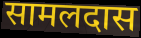
सामलदास